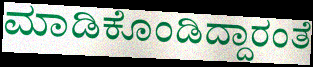
ಮಾಡಿಕೊಂಡಿದ್ದಾರಂತೆ